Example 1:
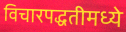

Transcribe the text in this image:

विचारपद्धतीमध्ये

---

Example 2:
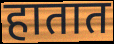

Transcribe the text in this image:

हातात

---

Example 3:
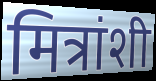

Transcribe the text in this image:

मित्रांशी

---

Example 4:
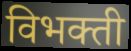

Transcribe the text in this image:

विभक्ती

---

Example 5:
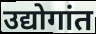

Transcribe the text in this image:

उद्योगांत